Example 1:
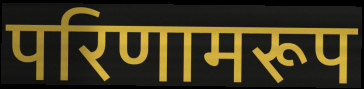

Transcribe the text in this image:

परिणामरूप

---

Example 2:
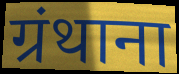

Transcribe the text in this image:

ग्रंथाना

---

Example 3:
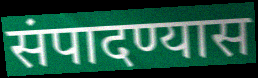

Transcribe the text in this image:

संपादण्यास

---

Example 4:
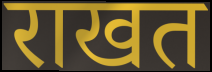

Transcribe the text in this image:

राखत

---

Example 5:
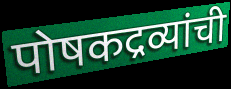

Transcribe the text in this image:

पोषकद्रव्यांची